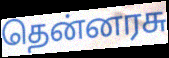
தென்னரசு